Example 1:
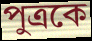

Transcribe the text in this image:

পুত্রকে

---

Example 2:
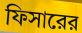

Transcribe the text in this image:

ফিসারের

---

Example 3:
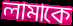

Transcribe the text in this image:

লামাকে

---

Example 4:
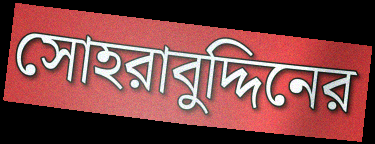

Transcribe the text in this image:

সোহরাবুদ্দিনের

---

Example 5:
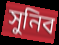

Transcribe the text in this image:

সুনিব